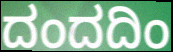
ದಂದದಿಂ